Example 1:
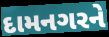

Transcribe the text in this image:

દામનગરને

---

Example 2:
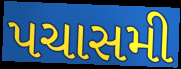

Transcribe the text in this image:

પચાસમી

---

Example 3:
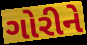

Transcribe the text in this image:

ગોરીને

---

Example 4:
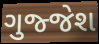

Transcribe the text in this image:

ગુજ્જેશ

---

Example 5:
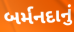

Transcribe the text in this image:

બર્મનદાનું